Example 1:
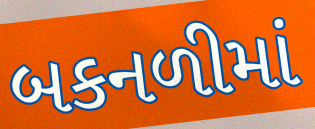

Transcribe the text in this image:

બકનળીમાં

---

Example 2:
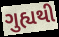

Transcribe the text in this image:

ગુહ્યથી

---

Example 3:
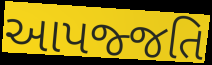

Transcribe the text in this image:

આપજ્જતિ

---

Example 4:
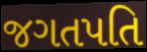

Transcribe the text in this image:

જગતપતિ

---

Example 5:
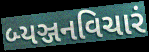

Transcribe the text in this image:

બ્યઞ્જનવિચારં